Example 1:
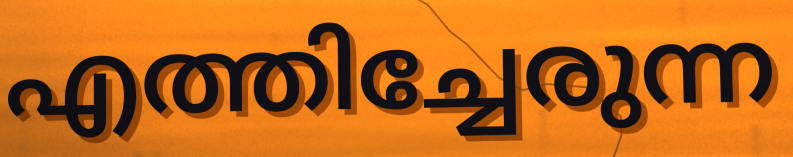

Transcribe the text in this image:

എത്തിച്ചേരുന്ന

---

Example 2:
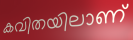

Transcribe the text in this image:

കവിതയിലാണ്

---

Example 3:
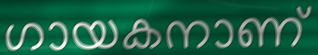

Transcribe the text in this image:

ഗായകനാണ്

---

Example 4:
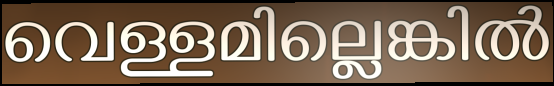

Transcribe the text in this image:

വെള്ളമില്ലെങ്കിൽ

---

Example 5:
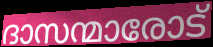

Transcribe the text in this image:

ദാസന്മാരോട്